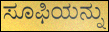
ಸೂಫಿಯನ್ನು